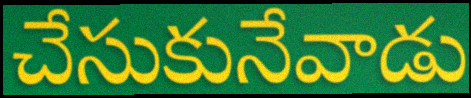
చేసుకునేవాడు